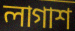
লাগাশ